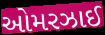
ઓમરઝાઈ